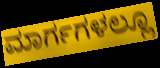
ಮಾರ್ಗಗಳಲ್ಲೂ